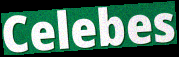
Celebes